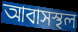
আবাসস্থল